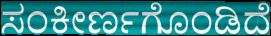
ಸಂಕೀರ್ಣಗೊಂಡಿದೆ